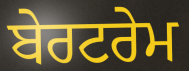
ਬੇਰਟਰੇਮ